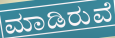
ಮಾಡಿರುವೆ